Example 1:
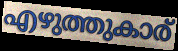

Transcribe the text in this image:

എഴുത്തുകാര്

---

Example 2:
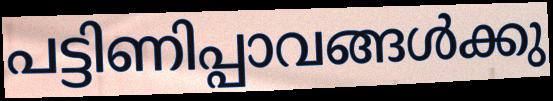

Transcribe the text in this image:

പട്ടിണിപ്പാവങ്ങൾക്കു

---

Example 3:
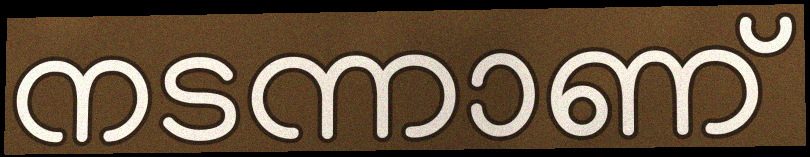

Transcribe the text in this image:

നടന്നാണ്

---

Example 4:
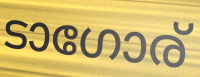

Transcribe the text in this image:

ടാഗോര്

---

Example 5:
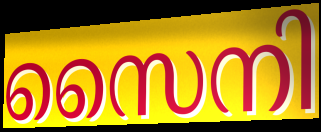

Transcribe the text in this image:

സൈനി